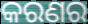
କରଣର